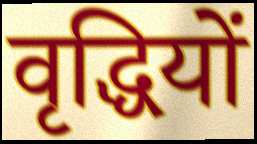
वृद्धियों